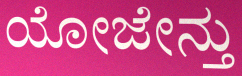
ಯೋಜೇನ್ತು